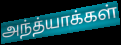
அந்த்யாக்கள்